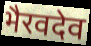
भैरवदेव